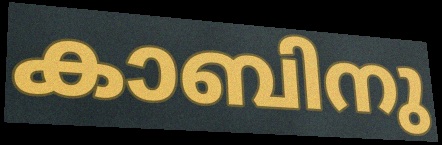
കാബിനു